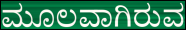
ಮೂಲವಾಗಿರುವ